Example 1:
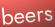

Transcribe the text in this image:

beers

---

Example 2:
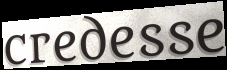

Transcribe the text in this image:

credesse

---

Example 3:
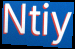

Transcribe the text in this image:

Ntiy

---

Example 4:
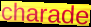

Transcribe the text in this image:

charade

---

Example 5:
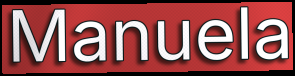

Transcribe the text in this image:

Manuela